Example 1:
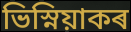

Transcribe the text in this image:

ভিস্নিয়াকৰ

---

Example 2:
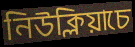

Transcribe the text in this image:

নিউক্লিয়াচে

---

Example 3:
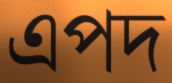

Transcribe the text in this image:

এপদ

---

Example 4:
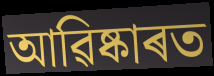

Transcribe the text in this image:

আৱিষ্কাৰত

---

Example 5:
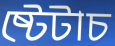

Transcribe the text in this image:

ষ্টেটাচ